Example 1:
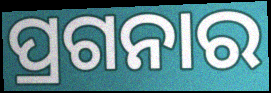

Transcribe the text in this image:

ପ୍ରଗନାର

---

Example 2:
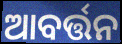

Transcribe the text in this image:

ଆବର୍ତ୍ତନ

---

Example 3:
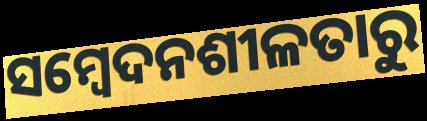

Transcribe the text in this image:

ସମ୍ବେଦନଶୀଳତାରୁ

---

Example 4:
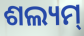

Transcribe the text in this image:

ଶଲ୍ୟମ୍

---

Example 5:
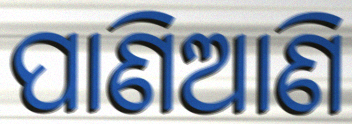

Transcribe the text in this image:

ପାଣିଆଣି